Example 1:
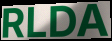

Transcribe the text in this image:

RLDA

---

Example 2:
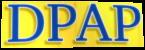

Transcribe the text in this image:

DPAP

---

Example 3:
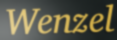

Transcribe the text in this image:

Wenzel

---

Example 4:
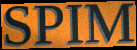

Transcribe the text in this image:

SPIM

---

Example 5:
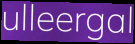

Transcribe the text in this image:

ulleergal